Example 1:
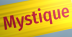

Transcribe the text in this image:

Mystique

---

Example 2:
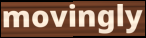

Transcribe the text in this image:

movingly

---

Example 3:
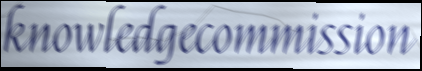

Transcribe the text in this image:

knowledgecommission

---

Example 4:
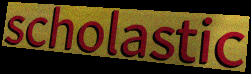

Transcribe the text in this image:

scholastic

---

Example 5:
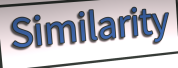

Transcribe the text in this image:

Similarity